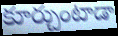
కూర్చుంటాడా